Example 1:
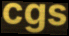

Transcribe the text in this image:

cgs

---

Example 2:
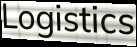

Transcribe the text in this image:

Logistics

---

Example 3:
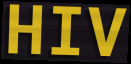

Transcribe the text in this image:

HIV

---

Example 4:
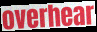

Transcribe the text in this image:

overhear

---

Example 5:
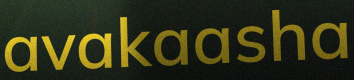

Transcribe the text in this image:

avakaasha